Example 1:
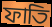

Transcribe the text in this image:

ফাতি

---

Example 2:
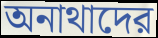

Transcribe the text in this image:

অনাথাদের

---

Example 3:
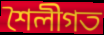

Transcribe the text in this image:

শৈলীগত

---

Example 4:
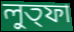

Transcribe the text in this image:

লুত্ফা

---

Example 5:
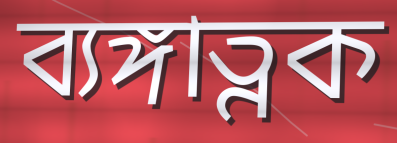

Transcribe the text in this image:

ব্যঙ্গাত্নক